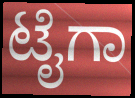
ಟೈಗಾ